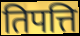
तिपत्ति